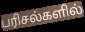
பரிசல்களில்